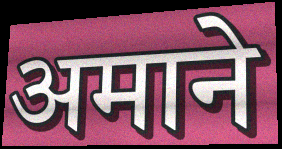
अमाने